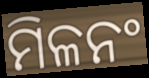
ମିଳନଂ